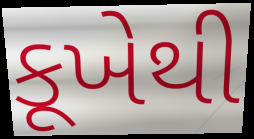
કૂખેથી